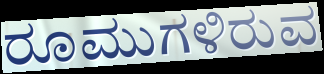
ರೂಮುಗಳಿರುವ